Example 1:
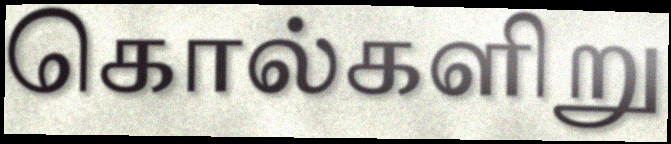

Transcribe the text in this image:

கொல்களிறு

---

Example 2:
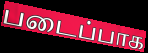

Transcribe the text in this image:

படைப்பாக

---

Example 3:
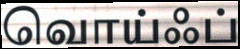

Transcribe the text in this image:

வொய்ஃப்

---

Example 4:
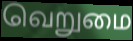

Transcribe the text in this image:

வெறுமை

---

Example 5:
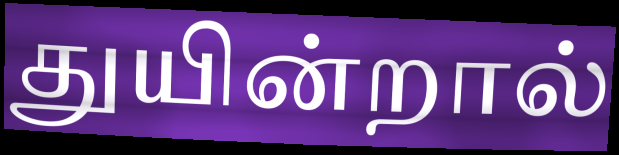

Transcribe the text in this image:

துயின்றால்